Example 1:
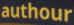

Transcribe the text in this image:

authour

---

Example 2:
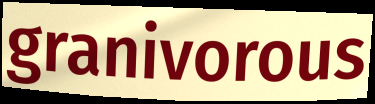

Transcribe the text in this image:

granivorous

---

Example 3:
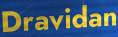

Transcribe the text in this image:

Dravidan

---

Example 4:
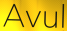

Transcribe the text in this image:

Avul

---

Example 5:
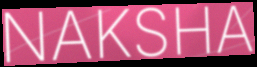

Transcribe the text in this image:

NAKSHA